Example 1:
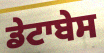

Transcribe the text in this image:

ਡੇਟਾਬੇਸ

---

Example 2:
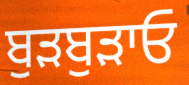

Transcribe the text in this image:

ਬੁੜਬੁੜਾਓ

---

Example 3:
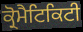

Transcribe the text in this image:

ਕ੍ਰੋਮੈਟਿਕਿਟੀ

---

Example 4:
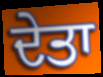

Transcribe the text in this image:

ਦੇਤਾ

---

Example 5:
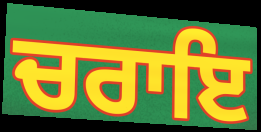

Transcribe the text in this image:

ਚਰਾਇ